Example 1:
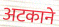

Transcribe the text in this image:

अटकाने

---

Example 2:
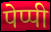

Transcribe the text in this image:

पेप्पी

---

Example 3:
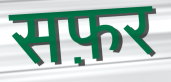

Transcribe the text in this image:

सफ़र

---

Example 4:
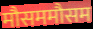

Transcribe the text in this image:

मौसममौसम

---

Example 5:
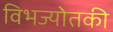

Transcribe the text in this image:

विभज्योतकी